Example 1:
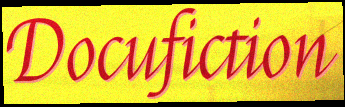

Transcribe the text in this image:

Docufiction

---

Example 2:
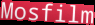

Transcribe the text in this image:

Mosfilm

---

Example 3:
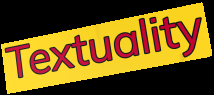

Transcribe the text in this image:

Textuality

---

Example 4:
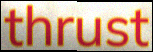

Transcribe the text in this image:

thrust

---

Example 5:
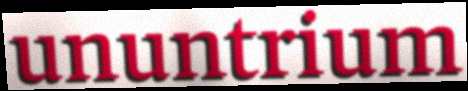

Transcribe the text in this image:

ununtrium